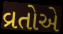
વ્રતોએ